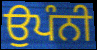
ਉਪੰਨੀ